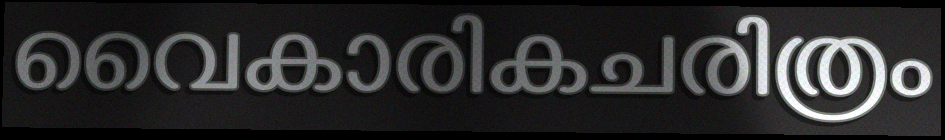
വൈകാരികചരിത്രം